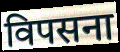
विपसना